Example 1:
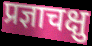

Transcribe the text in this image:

प्रज्ञाचक्षु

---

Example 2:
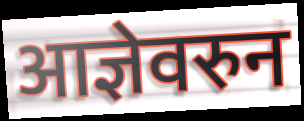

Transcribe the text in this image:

आज्ञेवरुन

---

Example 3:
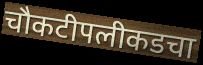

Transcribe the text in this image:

चौकटीपलीकडचा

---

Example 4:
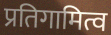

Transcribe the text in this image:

प्रतिगामित्व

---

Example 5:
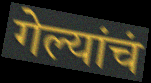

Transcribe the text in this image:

गेल्यांचं